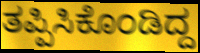
ತಪ್ಪಿಸಿಕೊಂಡಿದ್ದ